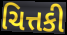
ચિત્તકી